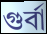
গুর্বা